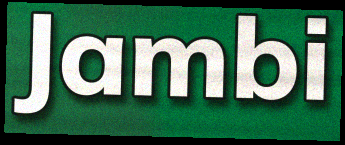
Jambi